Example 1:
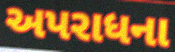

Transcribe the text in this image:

અપરાધના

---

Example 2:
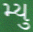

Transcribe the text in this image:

મ્યુ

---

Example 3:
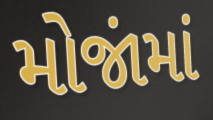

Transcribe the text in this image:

મોજાંમાં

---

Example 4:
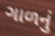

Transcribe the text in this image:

ગાળનું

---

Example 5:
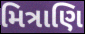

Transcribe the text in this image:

મિત્રાણિ